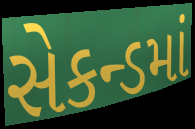
સેકન્ડમાં